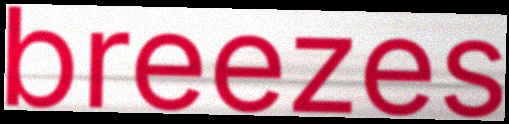
breezes